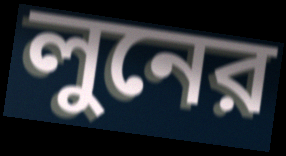
লুনের